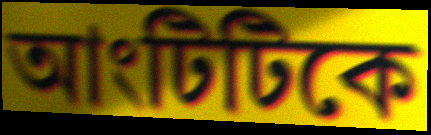
আংটিটিকে